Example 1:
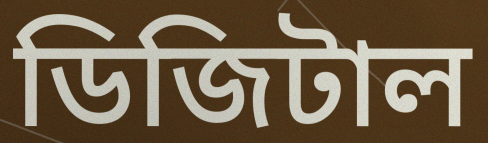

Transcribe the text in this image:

ডিজিটাল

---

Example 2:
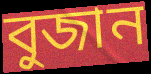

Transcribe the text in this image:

বুজান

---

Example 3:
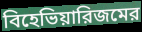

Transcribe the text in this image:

বিহেভিয়ারিজমের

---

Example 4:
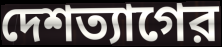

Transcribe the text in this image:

দেশত্যাগের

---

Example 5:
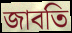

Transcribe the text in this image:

জাবতি